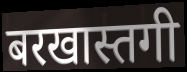
बरखास्तगी